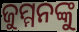
ଜୁମ୍ମନଙ୍କୁ